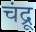
चंद्रू